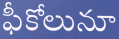
ఫీకోలునూ